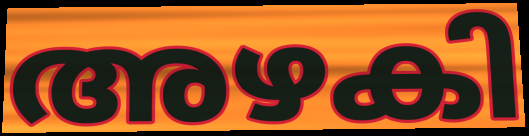
അഴകി